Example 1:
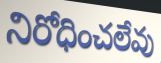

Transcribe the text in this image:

నిరోధించలేవు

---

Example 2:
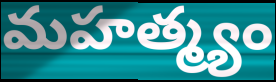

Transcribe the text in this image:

మహత్మ్యం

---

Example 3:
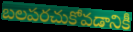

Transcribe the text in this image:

బలపరచుకోవడానికీ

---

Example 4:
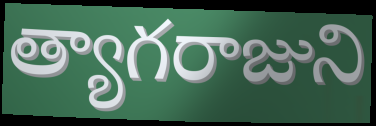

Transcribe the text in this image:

త్యాగరాజుని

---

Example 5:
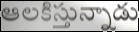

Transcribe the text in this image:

ఆలకిస్తున్నాడు